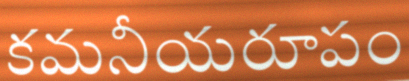
కమనీయరూపం